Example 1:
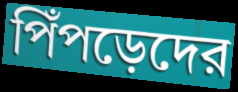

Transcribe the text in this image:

পিঁপড়েদের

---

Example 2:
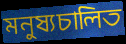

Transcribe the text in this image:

মনুষ্যচালিত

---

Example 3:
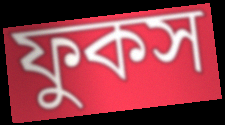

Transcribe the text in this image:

ফুকস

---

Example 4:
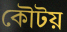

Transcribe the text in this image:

কৌটয়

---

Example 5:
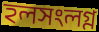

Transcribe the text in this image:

হলসংলগ্ন